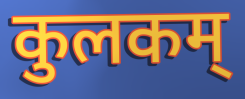
कुलकम्